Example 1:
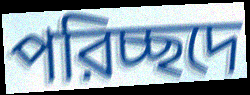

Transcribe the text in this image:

পরিচ্ছদে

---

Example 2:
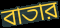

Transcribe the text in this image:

বাতার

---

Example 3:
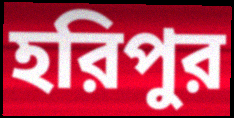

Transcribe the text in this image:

হরিপুর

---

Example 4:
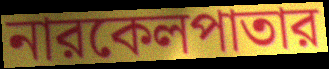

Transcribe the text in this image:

নারকেলপাতার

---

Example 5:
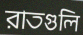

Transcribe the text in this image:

রাতগুলি